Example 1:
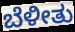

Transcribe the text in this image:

ಬೆಳೀತು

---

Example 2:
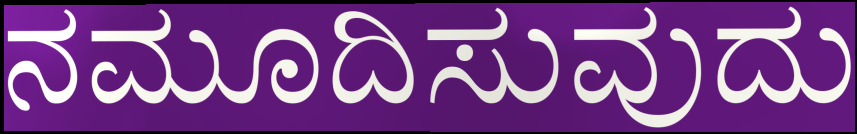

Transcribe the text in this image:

ನಮೂದಿಸುವುದು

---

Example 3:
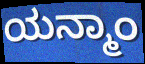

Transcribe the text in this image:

ಯನ್ಮಾಂ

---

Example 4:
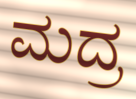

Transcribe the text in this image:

ಮದ್ರ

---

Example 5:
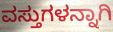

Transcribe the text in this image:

ವಸ್ತುಗಳನ್ನಾಗಿ